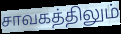
சாவகத்திலும்